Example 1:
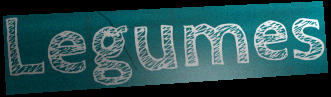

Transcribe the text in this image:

Legumes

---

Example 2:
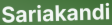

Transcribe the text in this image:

Sariakandi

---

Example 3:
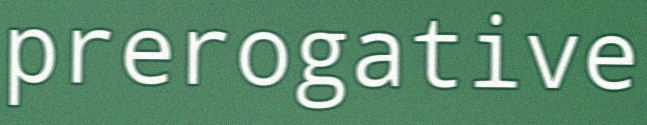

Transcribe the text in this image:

prerogative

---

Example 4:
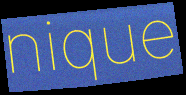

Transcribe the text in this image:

nique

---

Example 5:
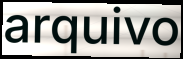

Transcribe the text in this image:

arquivo